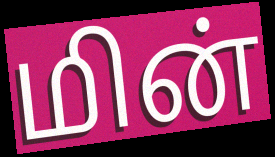
மின்